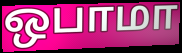
ஒபாமா